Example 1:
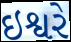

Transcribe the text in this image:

ઇશ્વરે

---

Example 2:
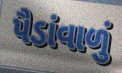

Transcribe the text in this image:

પૈડાંવાળું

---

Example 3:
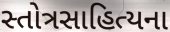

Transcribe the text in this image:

સ્તોત્રસાહિત્યના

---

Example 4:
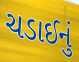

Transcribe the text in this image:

ચડાઈનું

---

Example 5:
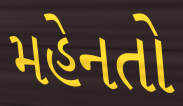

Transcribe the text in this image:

મહેનતો